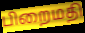
பிறைமதி